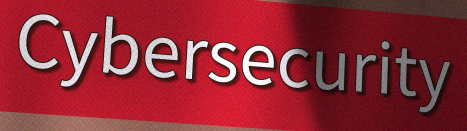
Cybersecurity